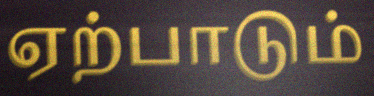
ஏற்பாடும்